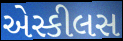
એસ્કીલસ